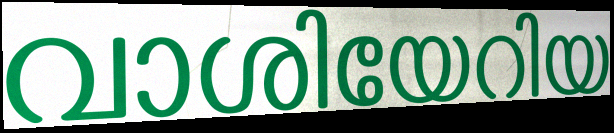
വാശിയേറിയ